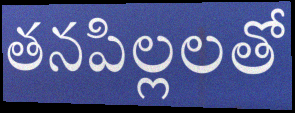
తనపిల్లలతో